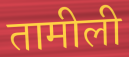
तामीली